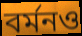
বর্মনও